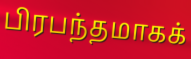
பிரபந்தமாகக்